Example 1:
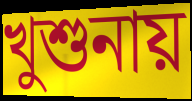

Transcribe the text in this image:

খুশুনায়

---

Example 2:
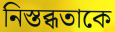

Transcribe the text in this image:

নিস্তব্ধতাকে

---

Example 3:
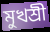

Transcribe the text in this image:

মুখশ্রী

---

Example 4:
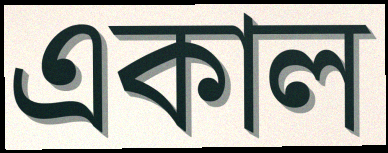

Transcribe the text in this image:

একাল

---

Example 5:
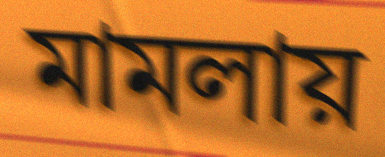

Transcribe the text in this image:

মামলায়